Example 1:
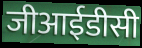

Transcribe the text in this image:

जीआईडीसी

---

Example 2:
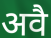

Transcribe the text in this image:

अवै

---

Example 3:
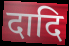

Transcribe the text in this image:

दादि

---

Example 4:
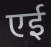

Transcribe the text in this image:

एई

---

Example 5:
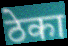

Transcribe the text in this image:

ठेका